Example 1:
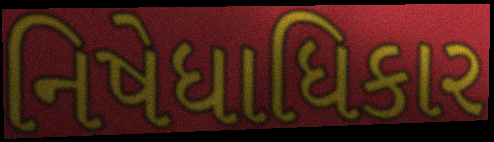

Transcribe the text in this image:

નિષેધાધિકાર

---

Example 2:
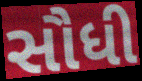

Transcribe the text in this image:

સૌધી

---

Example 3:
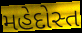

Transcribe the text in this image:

મહેદોસ્ત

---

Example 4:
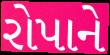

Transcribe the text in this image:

રોપાને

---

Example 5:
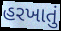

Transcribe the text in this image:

હરખાતું